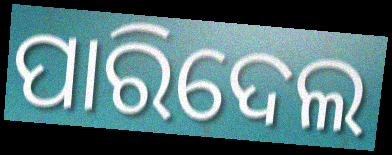
ପାରିଦେଲ